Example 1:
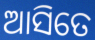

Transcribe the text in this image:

ଆସିତେ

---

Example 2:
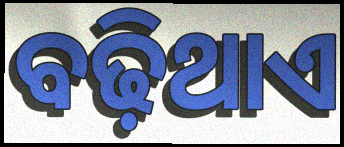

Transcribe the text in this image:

ବଢ଼ିଥାଏ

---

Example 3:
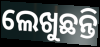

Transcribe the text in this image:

ଲେଖୁଛନ୍ତି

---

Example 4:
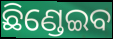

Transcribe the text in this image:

ଛିଣ୍ଡେଇବ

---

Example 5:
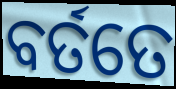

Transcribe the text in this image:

ବର୍ତତେ